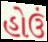
હોઉં